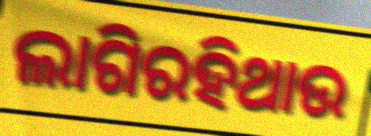
ଲାଗିରହିଥାଉ